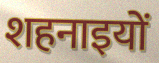
शहनाइयों